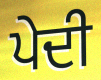
ਪੇਦੀ